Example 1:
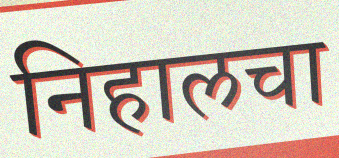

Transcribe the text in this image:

निहालचा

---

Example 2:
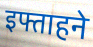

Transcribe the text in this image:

इफ्ताहने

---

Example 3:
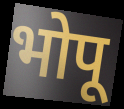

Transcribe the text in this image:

भोपू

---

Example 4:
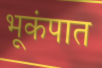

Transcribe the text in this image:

भूकंपात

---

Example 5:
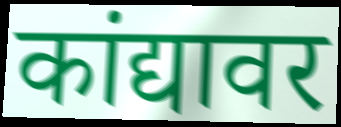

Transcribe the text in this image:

कांद्यावर